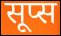
सूप्स